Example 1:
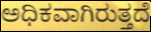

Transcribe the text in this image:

ಅಧಿಕವಾಗಿರುತ್ತದೆ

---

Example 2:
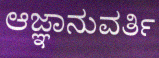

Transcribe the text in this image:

ಆಜ್ಞಾನುವರ್ತಿ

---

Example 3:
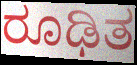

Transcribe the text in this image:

ರೂಢಿತ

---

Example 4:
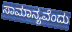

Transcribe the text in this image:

ಸಾಮಾನ್ಯವೆಂದು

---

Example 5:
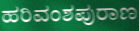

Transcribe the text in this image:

ಹರಿವಂಶಪುರಾಣ